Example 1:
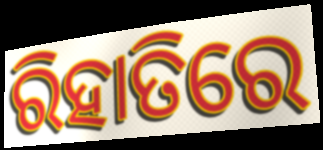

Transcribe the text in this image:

ରିହାତିରେ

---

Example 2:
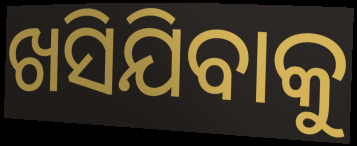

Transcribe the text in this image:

ଖସିଯିବାକୁ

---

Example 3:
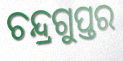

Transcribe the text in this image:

ଚନ୍ଦ୍ରଗୁପ୍ତର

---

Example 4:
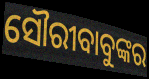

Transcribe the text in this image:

ସୌରୀବାବୁଙ୍କର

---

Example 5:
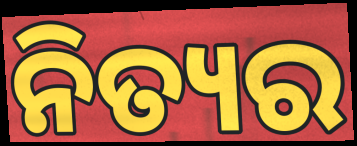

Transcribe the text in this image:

ନିତ୍ୟର